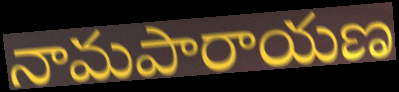
నామపారాయణ